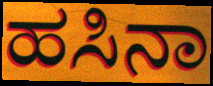
ಹಸಿನಾ